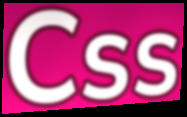
Css